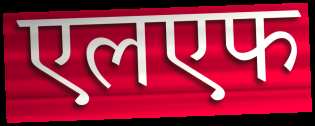
एलएफ